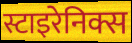
स्टाइरेनिक्स